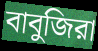
বাবুজিরা